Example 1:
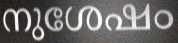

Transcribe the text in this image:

നുശേഷം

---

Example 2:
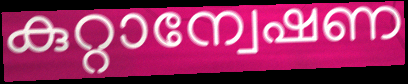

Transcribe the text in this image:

കുറ്റാന്വേഷണ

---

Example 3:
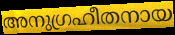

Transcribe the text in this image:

അനുഗ്രഹീതനായ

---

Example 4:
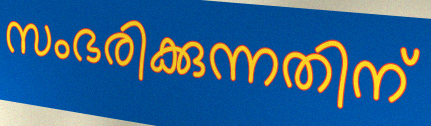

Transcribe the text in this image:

സംഭരിക്കുന്നതിന്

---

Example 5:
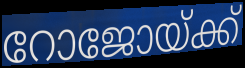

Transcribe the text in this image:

റോജോയ്ക്ക്